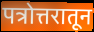
पत्रोत्तरातून